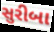
સુરીબા